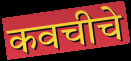
कवचीचे